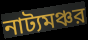
নাট্যমঞ্চর